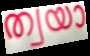
ത്വയാ